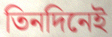
তিনদিনেই